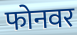
फोनवर